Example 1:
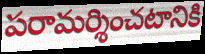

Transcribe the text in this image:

పరామర్శించటానికి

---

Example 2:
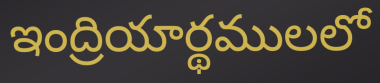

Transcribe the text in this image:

ఇంద్రియార్థములలో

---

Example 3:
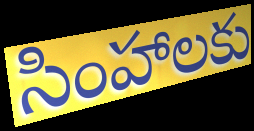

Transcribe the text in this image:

సింహాలకు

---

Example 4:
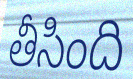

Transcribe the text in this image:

తీసింది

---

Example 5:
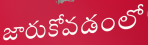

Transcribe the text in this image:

జారుకోవడంలో